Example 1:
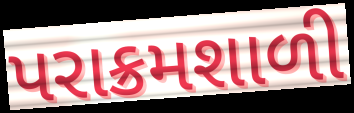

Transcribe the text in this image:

પરાક્રમશાળી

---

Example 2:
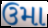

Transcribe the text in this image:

ઉમા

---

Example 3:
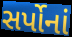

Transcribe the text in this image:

સર્પોનાં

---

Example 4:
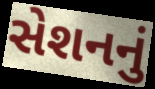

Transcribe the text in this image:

સેશનનું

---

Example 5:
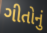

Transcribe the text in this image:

ગીતોનું